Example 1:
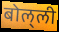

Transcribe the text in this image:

बोल्ली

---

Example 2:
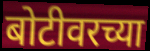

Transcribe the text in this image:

बोटीवरच्या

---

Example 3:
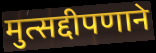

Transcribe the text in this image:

मुत्सद्दीपणाने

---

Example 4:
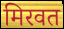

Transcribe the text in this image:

मिरवत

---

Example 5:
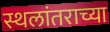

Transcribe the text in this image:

स्थलांतराच्या